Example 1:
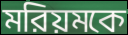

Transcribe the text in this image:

মরিয়মকে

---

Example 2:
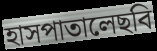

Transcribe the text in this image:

হাসপাতালেছবি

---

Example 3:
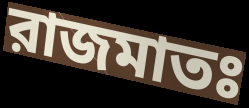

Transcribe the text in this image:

রাজমাতঃ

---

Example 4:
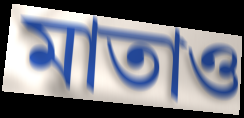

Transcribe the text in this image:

মাতাও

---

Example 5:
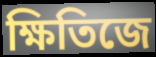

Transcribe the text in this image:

ক্ষিতিজে